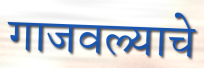
गाजवल्याचे